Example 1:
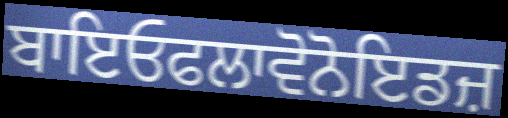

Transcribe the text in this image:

ਬਾਇਓਫਲਾਵੋਨੋਇਡਜ਼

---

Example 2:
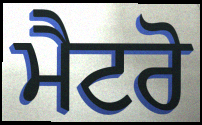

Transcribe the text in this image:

ਮੈਟਰੋ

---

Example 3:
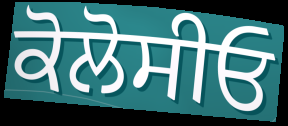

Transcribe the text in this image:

ਕੋਲੋਸੀਓ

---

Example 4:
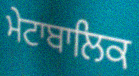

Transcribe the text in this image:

ਮੇਟਾਬਾਲਿਕ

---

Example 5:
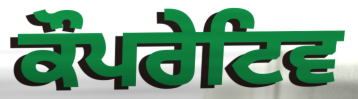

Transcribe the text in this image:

ਕੌਪਰੇਟਿਵ